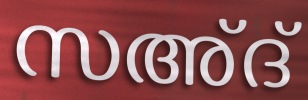
സഅ്ദ്